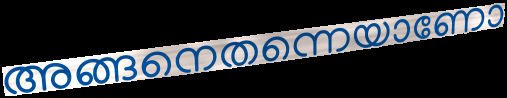
അങ്ങനെതന്നെയാണോ